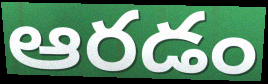
ఆరడం